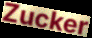
Zucker